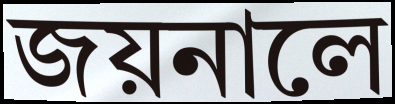
জয়নালে